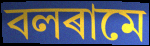
বলৰামে